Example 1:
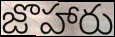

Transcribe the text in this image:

జొహారు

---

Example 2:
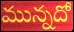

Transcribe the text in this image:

మున్నదో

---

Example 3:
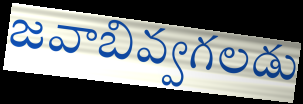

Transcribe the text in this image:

జవాబివ్వగలడు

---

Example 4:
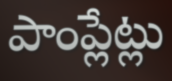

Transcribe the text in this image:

పాంప్లేట్లు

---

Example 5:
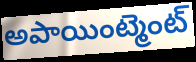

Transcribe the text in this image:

అపాయింట్మెంట్